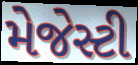
મેજેસ્ટી